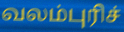
வலம்புரிச்